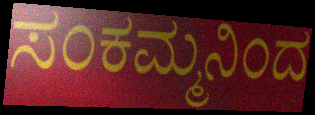
ಸಂಕಮ್ಮನಿಂದ